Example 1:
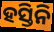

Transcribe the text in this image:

ହସ୍ତିନି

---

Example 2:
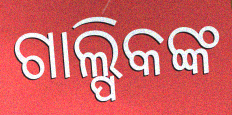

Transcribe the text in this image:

ଗାଲ୍ପିକଙ୍କ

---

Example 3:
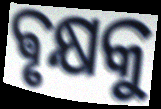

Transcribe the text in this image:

ଵୃକ୍ଷକୁ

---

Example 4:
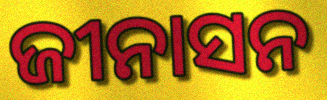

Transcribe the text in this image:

ଜୀନାସନ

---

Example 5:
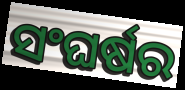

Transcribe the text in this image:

ସଂଘର୍ଷର